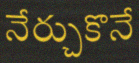
నేర్చుకొనే